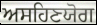
ਅਸਹਿਣਯੋਗ